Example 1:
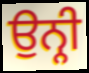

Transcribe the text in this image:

ਉਨ੍ਨੀ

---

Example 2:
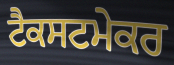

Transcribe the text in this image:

ਟੈਕਸਟਮੇਕਰ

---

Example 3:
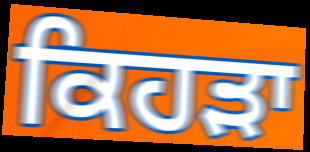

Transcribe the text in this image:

ਕਿਹੜਾ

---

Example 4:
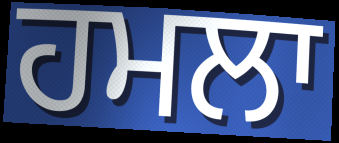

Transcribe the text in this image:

ਹਮਲਾ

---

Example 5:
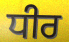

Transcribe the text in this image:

ਧੀਰ